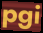
pgi